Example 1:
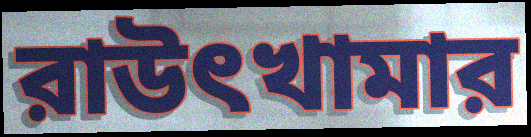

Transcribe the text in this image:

রাউৎখামার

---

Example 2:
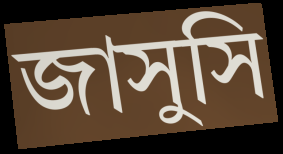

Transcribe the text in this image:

জাসুসি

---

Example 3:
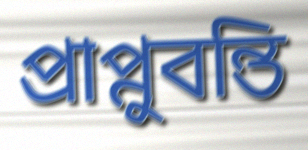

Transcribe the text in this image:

প্রাপ্নুবন্তি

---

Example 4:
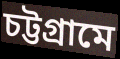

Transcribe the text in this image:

চট্টগ্রামে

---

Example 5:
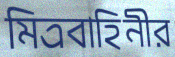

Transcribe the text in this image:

মিত্রবাহিনীর